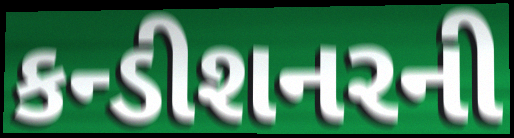
કન્ડીશનરની